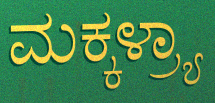
ಮಕ್ಕಳ್ರ್ಯಾ